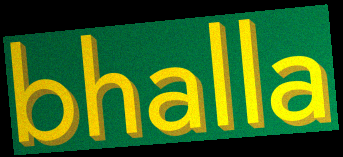
bhalla